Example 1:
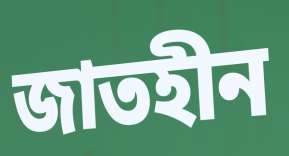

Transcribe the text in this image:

জাতহীন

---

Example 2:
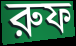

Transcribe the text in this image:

রুফ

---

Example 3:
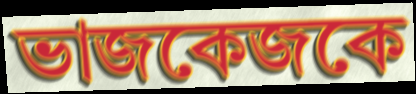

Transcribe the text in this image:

ভাজকেজকে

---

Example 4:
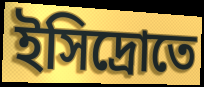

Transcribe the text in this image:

ইসিদ্রোতে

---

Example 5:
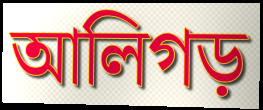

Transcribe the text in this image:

আলিগড়